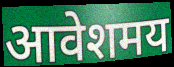
आवेशमय